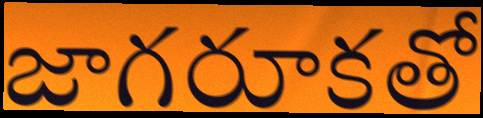
జాగరూకతో